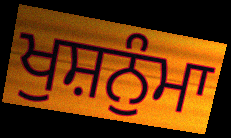
ਖੁਸ਼ਨੁੰਮਾ